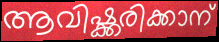
ആവിഷ്ക്കരിക്കാന്